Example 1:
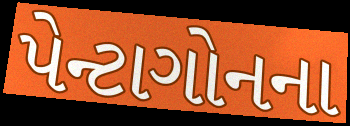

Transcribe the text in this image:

પેન્ટાગોનના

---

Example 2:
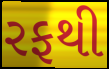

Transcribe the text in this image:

રફથી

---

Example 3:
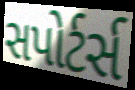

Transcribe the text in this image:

સપોર્ટર્સ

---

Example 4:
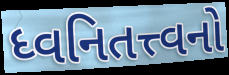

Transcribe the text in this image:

ધ્વનિતત્ત્વનો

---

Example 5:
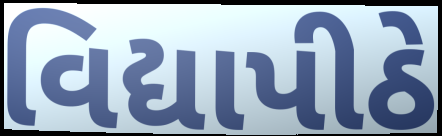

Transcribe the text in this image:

વિદ્યાપીઠે